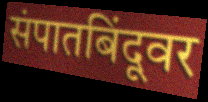
संपातबिंदूवर